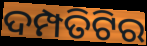
ଦମ୍ପତିଟିର